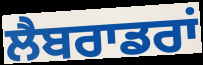
ਲੈਬਰਾਡਰਾਂ